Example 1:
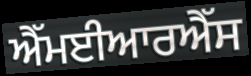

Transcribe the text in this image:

ਐੱਮਈਆਰਐੱਸ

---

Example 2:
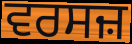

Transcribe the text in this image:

ਵਰਸਜ਼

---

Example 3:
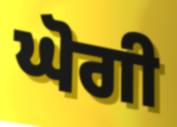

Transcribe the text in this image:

ਘੋਗੀ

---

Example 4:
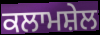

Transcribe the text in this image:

ਕਲਾਮਸ਼ੇਲ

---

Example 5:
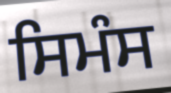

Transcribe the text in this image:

ਸਿਮੰਸ